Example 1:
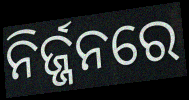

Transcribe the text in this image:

ନିର୍ଜ୍ଜନରେ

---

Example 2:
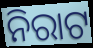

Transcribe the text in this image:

ନିରାଟ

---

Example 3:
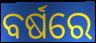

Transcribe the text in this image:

ବର୍ଷରେ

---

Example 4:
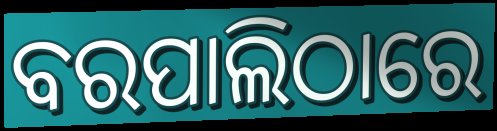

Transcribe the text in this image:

ବରପାଲିଠାରେ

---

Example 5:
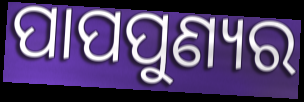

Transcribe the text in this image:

ପାପପୁଣ୍ୟର